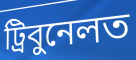
ট্ৰিবুনেলত